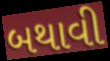
બથાવી